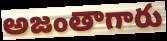
అజంతాగారు